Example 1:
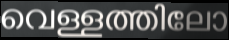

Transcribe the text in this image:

വെള്ളത്തിലോ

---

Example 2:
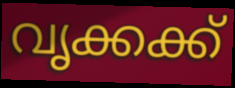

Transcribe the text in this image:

വൃക്കക്ക്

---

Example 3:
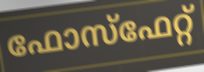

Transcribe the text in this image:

ഫോസ്ഫേറ്റ്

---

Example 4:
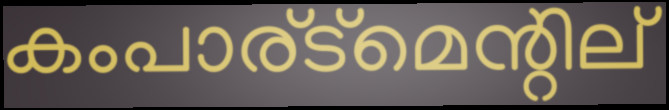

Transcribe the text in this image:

കംപാര്ട്മെന്റില്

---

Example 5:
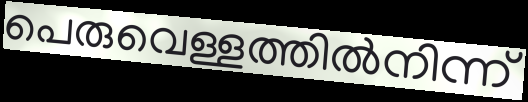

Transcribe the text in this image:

പെരുവെള്ളത്തിൽനിന്ന്